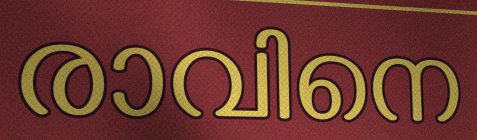
രാവിനെ